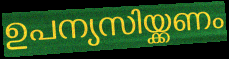
ഉപന്യസിയ്ക്കണം